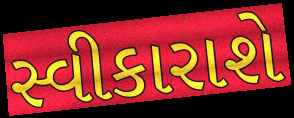
સ્વીકારાશે